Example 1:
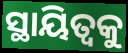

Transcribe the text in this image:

ସ୍ଥାୟିତ୍ୱକୁ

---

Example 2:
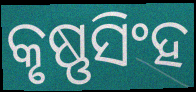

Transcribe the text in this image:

କୃଷ୍ଣସିଂହ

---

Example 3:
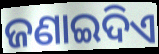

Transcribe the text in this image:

ଜଣାଇଦିଏ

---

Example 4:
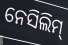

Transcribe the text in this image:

ନେସିଲିମ୍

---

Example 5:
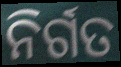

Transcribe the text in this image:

ନିର୍ଗତ